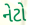
નેટો